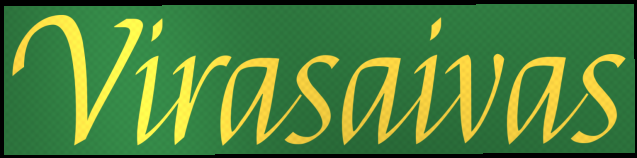
Virasaivas